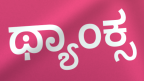
ಥ್ಯಾಂಕ್ಸ